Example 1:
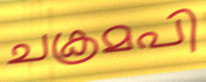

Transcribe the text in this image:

ചക്രമപി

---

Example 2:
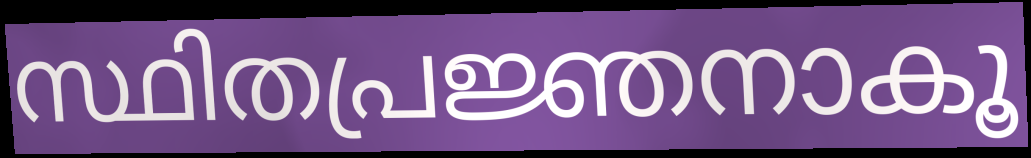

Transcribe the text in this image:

സ്ഥിതപ്രജ്ഞനാകൂ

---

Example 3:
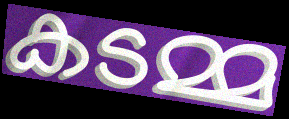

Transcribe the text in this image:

കടമ്മ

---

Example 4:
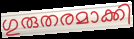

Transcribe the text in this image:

ഗുരുതരമാക്കി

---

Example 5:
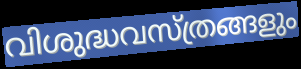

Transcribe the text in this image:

വിശുദ്ധവസ്ത്രങ്ങളും